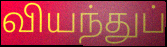
வியந்துப்